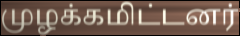
முழக்கமிட்டனர்